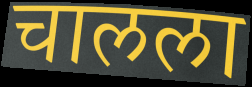
चालला